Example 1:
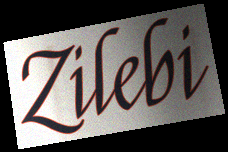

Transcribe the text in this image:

Zilebi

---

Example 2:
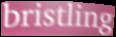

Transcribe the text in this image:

bristling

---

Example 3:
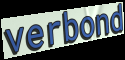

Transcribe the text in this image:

verbond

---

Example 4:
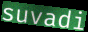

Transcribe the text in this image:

suvadi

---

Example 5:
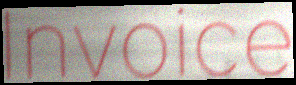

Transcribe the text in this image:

Invoice